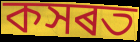
কসৰত